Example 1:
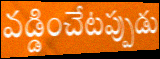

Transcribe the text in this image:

వడ్డించేటప్పుడు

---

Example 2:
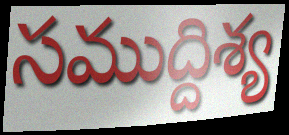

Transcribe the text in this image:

సముద్దిశ్య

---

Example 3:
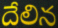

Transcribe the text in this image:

దేలిన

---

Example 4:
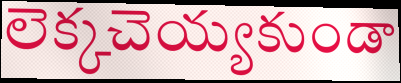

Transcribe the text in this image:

లెక్కచెయ్యకుండా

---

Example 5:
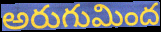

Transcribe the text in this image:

అరుగుమింద